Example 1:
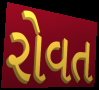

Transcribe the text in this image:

રોવત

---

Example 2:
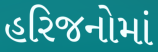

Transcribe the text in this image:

હરિજનોમાં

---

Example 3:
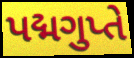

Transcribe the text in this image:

પદ્મગુપ્તે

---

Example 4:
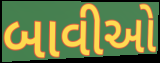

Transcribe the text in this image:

બાવીઓ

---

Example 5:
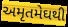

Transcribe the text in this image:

અમૃતમેઘથી